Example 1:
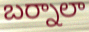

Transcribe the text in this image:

బర్నాలా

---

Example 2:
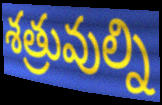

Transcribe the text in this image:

శత్రువుల్ని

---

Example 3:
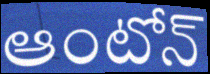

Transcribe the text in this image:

ఆంటోన్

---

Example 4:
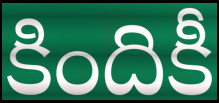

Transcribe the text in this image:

కిందికీ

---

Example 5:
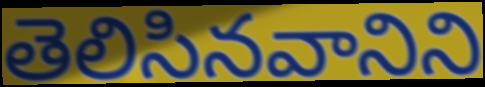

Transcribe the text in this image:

తెలిసినవానిని